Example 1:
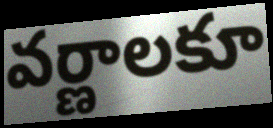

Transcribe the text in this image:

వర్ణాలకూ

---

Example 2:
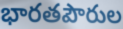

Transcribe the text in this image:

భారతపౌరుల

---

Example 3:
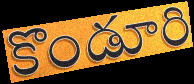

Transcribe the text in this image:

కొండూరి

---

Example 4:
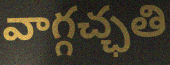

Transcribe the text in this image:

వాగ్గచ్ఛతి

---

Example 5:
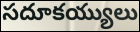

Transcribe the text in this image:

సదూకయ్యులు